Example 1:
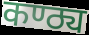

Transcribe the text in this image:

कण्ठ्य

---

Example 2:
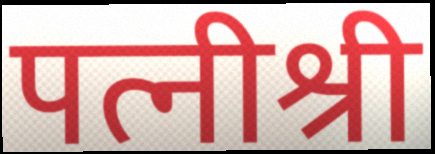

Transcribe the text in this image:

पत्नीश्री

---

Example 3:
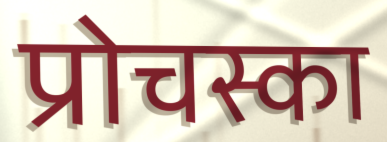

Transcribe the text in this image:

प्रोचस्का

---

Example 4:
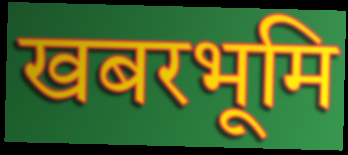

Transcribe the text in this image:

खबरभूमि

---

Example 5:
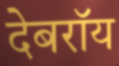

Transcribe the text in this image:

देबरॉय